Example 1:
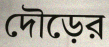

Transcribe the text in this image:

দৌড়ের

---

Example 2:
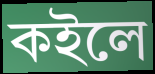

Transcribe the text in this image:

কইলে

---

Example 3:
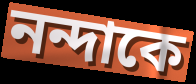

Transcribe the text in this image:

নন্দাকে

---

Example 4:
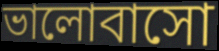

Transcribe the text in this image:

ভালোবাসো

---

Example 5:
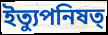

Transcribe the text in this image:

ইত্যুপনিষত্